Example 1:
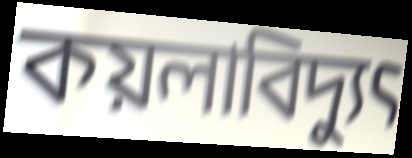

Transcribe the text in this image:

কয়লাবিদ্যুৎ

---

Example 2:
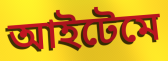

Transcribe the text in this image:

আইটেমে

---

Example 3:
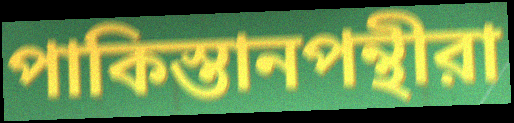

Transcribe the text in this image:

পাকিস্তানপন্থীরা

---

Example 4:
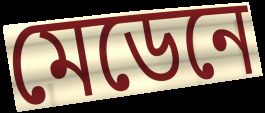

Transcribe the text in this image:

মেডেনে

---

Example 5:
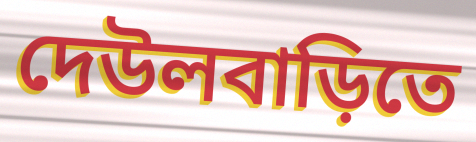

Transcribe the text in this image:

দেউলবাড়িতে